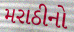
મરાઠીનો